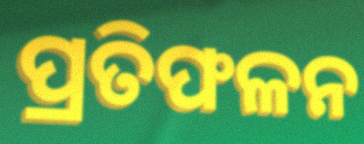
ପ୍ରତିଫଳନ